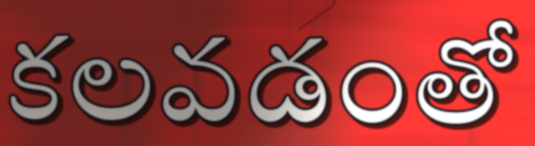
కలవడంతో